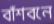
বাঁশবনে